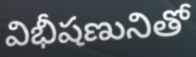
విభీషణునితో